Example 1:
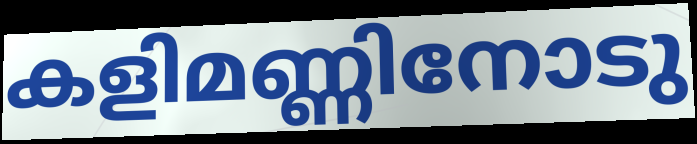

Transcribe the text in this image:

കളിമണ്ണിനോടു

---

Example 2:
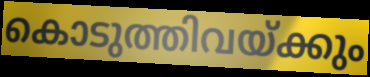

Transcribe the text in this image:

കൊടുത്തിവയ്ക്കും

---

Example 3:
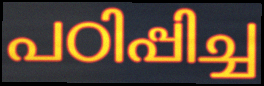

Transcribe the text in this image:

പഠിപ്പിച്ച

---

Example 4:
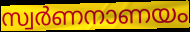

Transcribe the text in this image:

സ്വർണനാണയം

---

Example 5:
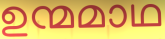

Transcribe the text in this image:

ഉന്മമാഥ